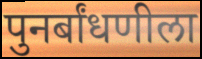
पुनर्बांधणीला